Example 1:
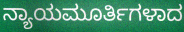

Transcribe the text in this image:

ನ್ಯಾಯಮೂರ್ತಿಗಳಾದ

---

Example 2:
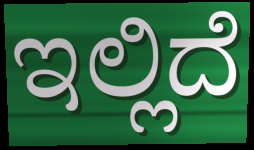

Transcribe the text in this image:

ಇಲ್ಲಿದೆ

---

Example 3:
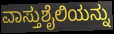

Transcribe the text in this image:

ವಾಸ್ತುಶೈಲಿಯನ್ನು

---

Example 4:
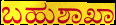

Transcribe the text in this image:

ಬಹುಶಾಖಾ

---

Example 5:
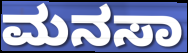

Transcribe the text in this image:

ಮನಸಾ